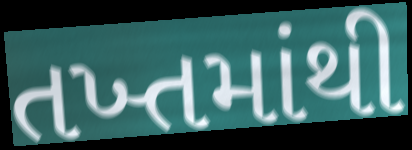
તખ્તમાંથી